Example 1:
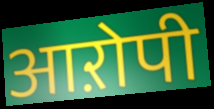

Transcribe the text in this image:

आऱोपी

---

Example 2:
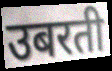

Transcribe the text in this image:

उबरती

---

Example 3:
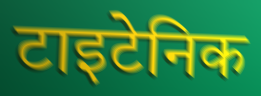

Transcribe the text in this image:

टाइटेनिक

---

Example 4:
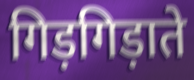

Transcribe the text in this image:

गिड़गिड़ाते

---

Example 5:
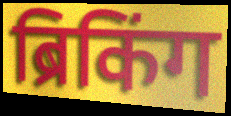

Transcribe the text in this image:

ब्रिकिंग